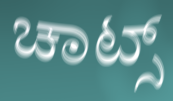
ಚಾಟ್ಸ್